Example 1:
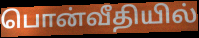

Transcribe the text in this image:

பொன்வீதியில்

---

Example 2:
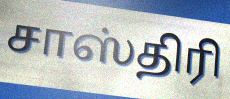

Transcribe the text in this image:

சாஸ்திரி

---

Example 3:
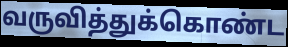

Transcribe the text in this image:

வருவித்துக்கொண்ட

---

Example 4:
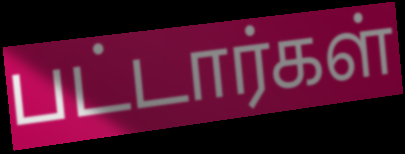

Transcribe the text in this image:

பட்டார்கள்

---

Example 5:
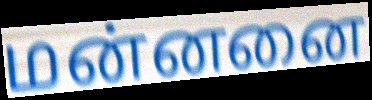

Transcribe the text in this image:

மன்னனை